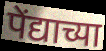
पेंद्याच्या